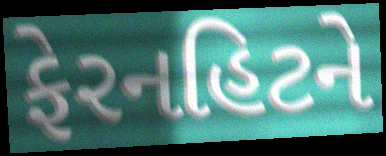
ફેરનહિટને